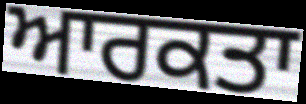
ਆਰਕਤਾ